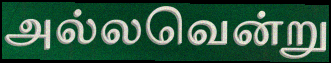
அல்லவென்று